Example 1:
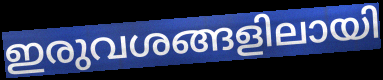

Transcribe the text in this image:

ഇരുവശങ്ങളിലായി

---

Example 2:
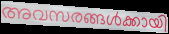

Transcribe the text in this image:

അവസരങ്ങൾക്കായി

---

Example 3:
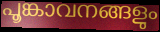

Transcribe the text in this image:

പൂങ്കാവനങ്ങളും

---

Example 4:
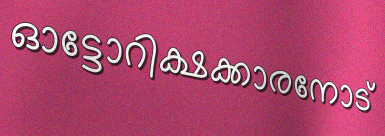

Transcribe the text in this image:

ഓട്ടോറിക്ഷക്കാരനോട്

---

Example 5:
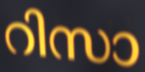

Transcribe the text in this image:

റിസാ